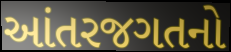
આંતરજગતનો